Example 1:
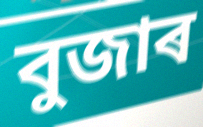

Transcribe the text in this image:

বুজাৰ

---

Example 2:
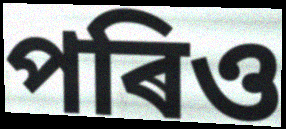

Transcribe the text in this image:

পৰিও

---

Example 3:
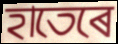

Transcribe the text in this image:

হাতেৰে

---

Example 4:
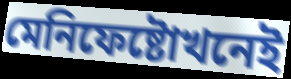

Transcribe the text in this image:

মেনিফেষ্টোখনেই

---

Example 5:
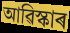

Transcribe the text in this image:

আৱিস্কাৰ